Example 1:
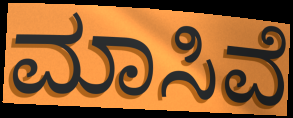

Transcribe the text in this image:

ಮಾಸಿವೆ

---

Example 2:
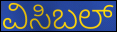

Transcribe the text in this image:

ವಿಸಿಬಲ್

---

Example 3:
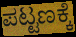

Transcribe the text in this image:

ಪಟ್ಟಣಕ್ಕೆ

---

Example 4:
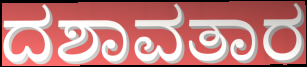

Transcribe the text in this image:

ದಶಾವತಾರ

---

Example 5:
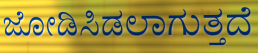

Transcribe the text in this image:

ಜೋಡಿಸಿಡಲಾಗುತ್ತದೆ